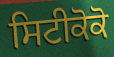
ਸਿਟੀਕੋਕੋ